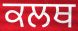
ਕਲਥ